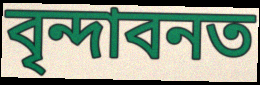
বৃন্দাবনত